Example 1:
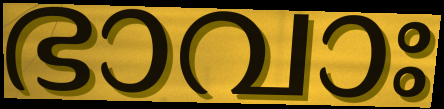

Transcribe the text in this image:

ഭാവാഃ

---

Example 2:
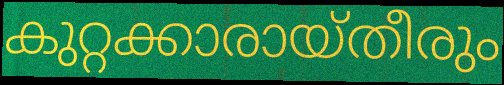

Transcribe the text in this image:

കുറ്റക്കാരായ്തീരും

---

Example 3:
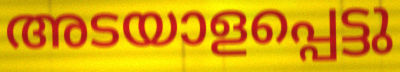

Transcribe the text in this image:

അടയാളപ്പെട്ടു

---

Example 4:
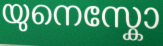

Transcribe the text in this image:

യുനെസ്കോ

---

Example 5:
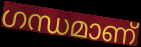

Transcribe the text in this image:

ഗന്ധമാണ്